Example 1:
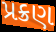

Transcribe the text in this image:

પ્રક્રણ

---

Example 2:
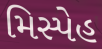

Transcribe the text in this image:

મિસ્પેહ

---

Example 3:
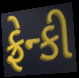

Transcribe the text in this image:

ફ્રેન્કી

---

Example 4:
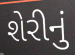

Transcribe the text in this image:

શેરીનું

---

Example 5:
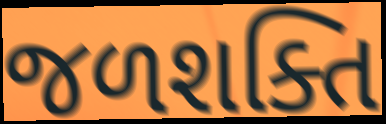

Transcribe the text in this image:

જળશક્તિ